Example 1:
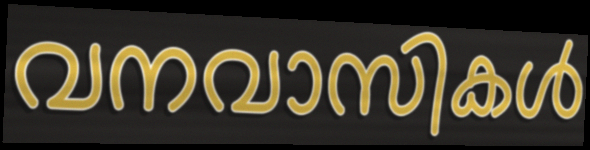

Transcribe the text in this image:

വനവാസികൾ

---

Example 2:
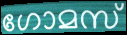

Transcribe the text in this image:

ഗോമസ്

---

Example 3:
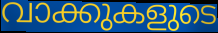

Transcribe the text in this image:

വാക്കുകളുടെ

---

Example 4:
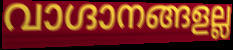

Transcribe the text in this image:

വാഗ്ദാനങ്ങളല്ല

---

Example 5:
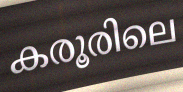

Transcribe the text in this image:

കരൂരിലെ